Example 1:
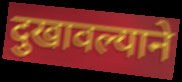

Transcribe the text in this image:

दुखावल्याने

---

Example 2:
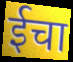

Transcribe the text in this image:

ईचा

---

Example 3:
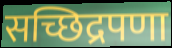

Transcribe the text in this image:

सच्छिद्रपणा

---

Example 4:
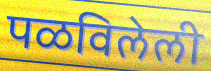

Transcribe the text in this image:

पळविलेली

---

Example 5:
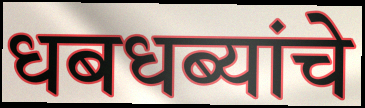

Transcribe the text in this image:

धबधब्यांचे